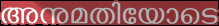
അനുമതിയോടെ